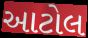
આટોલ